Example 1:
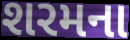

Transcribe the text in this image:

શરમના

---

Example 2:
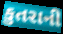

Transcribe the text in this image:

કુતરાની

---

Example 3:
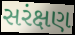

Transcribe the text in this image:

સરંક્ષણ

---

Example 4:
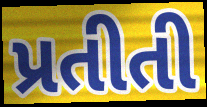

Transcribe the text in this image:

પ્રતીતી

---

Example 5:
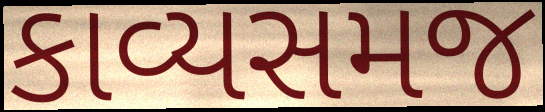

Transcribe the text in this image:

કાવ્યસમજ